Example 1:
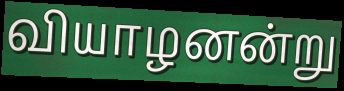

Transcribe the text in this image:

வியாழனன்று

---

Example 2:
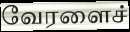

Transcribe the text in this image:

வேரளைச்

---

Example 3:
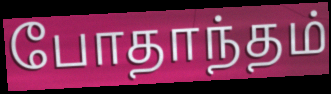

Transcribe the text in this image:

போதாந்தம்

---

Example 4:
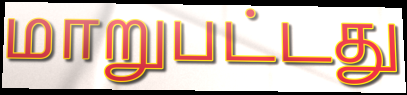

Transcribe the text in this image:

மாறுபட்டது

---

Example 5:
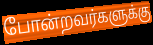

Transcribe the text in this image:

போன்றவர்களுக்கு